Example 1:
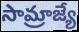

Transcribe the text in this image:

సామ్రాజ్యే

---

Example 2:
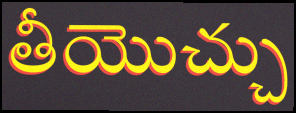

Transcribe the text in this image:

తీయొచ్చు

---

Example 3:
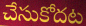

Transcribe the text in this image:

చేసుకోదట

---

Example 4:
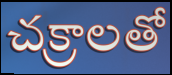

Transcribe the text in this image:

చక్రాలతో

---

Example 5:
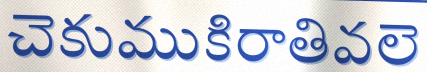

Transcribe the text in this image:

చెకుముకిరాతివలె